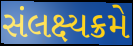
સંલક્ષ્યક્રમે